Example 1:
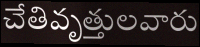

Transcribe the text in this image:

చేతివృత్తులవారు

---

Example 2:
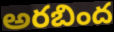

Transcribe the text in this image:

అరబింద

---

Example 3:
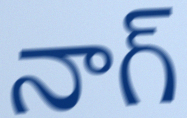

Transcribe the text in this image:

నాగ్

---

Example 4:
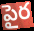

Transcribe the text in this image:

పైర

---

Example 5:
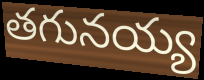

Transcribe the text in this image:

తగునయ్య